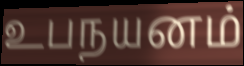
உபநயனம்